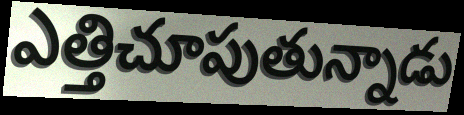
ఎత్తిచూపుతున్నాడు